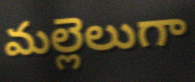
మల్లెలుగా